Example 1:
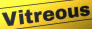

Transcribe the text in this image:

Vitreous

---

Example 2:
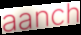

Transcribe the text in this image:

aanch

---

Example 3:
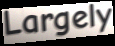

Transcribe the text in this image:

Largely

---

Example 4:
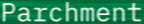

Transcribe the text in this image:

Parchment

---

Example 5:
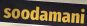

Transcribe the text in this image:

soodamani